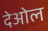
देओल